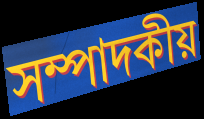
সম্পাদকীয়